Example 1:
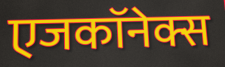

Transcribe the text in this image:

एजकॉनेक्स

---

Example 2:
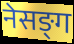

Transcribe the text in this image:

नेसङ्ग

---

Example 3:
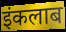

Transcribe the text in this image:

इंकलाब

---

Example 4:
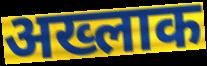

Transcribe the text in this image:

अख्लाक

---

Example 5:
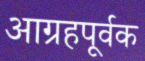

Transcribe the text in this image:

आग्रहपूर्वक